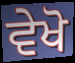
ਵੇਖੋ